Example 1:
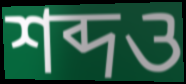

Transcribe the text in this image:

শব্দও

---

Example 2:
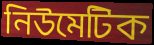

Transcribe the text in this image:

নিউমেটিক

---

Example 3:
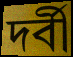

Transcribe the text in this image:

দর্বী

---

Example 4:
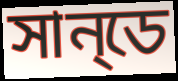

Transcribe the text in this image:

সান্‌ডে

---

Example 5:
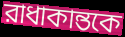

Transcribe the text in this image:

রাধাকান্তকে